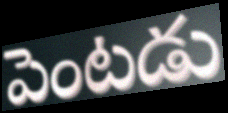
పెంటడు